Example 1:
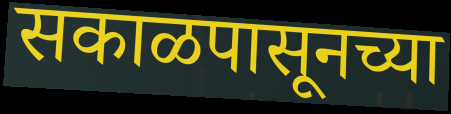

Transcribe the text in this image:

सकाळपासूनच्या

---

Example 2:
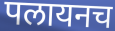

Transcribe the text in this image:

पलायनच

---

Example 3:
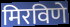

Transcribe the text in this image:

मिरविणे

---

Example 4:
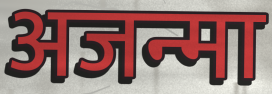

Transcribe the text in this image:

अजन्मा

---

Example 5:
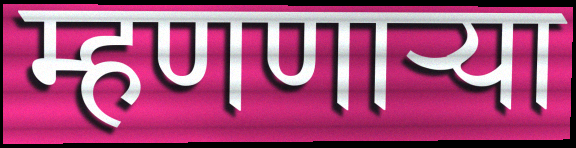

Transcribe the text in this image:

म्हणणाऱ्या